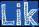
Lik